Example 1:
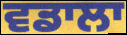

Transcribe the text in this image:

ਵਡਾਲਾ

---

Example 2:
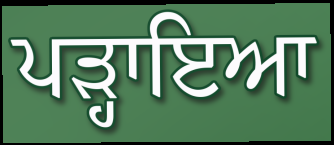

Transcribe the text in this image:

ਪੜ੍ਹਾਇਆ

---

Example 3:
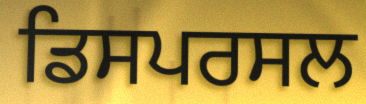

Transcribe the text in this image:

ਡਿਸਪਰਸਲ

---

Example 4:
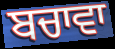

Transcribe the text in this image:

ਬਚਾਵਾ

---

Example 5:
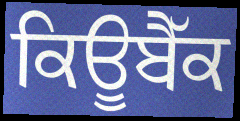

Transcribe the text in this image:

ਕਿਊਬੈੱਕ